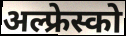
अल्फ्रेस्को